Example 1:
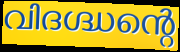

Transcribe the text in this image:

വിദഗ്ദ്ധന്റെ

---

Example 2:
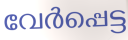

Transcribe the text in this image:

വേർപ്പെട്ട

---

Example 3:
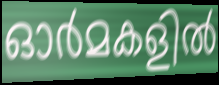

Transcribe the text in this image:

ഓർമകളിൽ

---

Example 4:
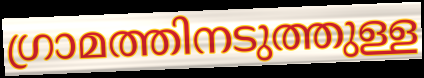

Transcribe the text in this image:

ഗ്രാമത്തിനടുത്തുള്ള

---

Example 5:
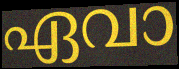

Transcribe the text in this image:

ഏവാ